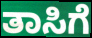
ತಾಸಿಗೆ